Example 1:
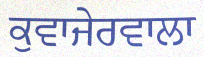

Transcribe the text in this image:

ਕੁਵਾਜੇਰਵਾਲਾ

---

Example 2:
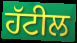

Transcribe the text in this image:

ਹੱਟੀਲ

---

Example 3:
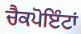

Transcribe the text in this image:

ਚੈਕਪੋਇੰਟਾਂ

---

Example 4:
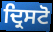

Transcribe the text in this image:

ਦ੍ਰਿਸਟੋ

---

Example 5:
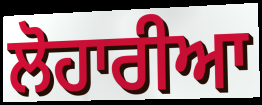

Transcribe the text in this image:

ਲੋਹਾਰੀਆ